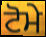
ਟੋਮੇ